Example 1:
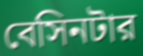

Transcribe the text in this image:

বেসিনটার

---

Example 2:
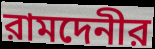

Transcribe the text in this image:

রামদেনীর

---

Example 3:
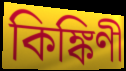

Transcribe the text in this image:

কিঙ্কিণী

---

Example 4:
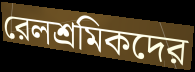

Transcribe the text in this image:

রেলশ্রমিকদের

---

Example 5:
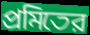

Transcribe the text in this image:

প্রমিতের